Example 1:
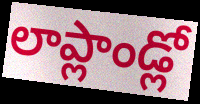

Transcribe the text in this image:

లాప్లాండ్లో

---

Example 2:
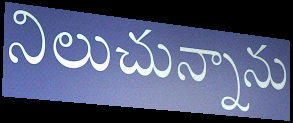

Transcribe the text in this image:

నిలుచున్నాను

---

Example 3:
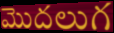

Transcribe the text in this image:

మొదలుగ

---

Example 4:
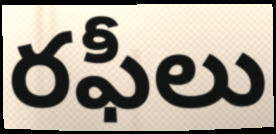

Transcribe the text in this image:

రఫీలు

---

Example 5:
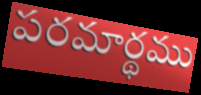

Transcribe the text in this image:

పరమార్థము